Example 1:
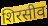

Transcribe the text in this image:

शिरसीव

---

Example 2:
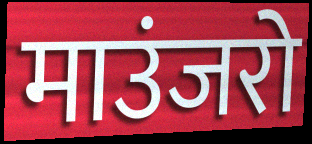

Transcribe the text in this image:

माउंजरो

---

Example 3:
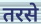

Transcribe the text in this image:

तरसे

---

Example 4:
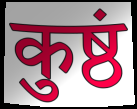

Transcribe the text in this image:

कुष्ठं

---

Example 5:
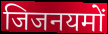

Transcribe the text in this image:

जिजनयमों